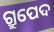
ଗ୍ରୁପେଦ